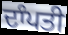
ਦਾੰਪਤੀ